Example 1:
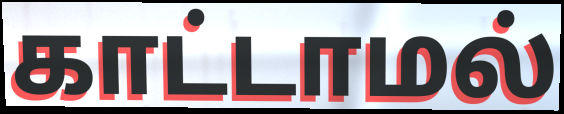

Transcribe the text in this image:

காட்டாமல்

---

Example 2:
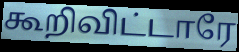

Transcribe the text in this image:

கூறிவிட்டாரே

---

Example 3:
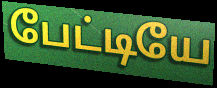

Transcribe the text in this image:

பேட்டியே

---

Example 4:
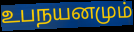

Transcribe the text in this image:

உபநயனமும்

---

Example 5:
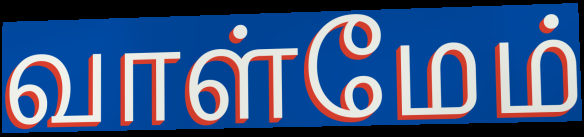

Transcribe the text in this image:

வாள்மேம்